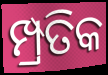
ମ୍ପ୍ରତିକ